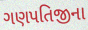
ગણપતિજીના